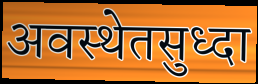
अवस्थेतसुध्दा